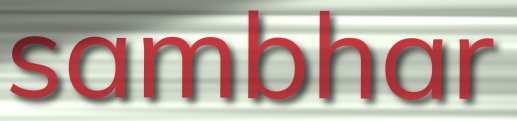
sambhar